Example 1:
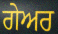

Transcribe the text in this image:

ਗੇਅਰ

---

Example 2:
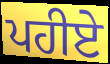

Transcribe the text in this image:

ਪਹੀਏ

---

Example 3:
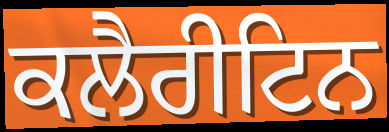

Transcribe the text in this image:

ਕਲੈਰੀਟਿਨ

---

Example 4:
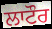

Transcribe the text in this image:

ਲਾਟੌਰ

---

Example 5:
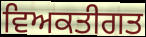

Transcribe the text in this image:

ਵਿਅਕਤੀਗਤ